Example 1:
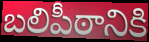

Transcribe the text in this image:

బలిపీఠానికి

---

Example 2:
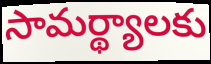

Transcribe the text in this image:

సామర్థ్యాలకు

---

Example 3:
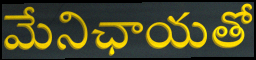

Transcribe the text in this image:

మేనిఛాయతో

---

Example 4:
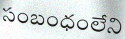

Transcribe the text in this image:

సంబంధంలేని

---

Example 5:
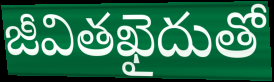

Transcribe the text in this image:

జీవితఖైదుతో